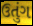
ઉતુંગ